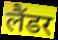
लैंडर